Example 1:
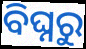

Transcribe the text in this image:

ବିଘ୍ନରୁ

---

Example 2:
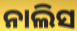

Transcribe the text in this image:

ନାଲିସ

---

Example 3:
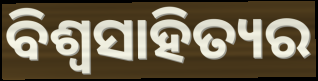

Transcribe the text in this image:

ବିଶ୍ୱସାହିତ୍ୟର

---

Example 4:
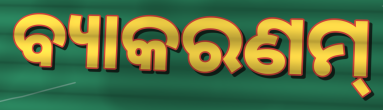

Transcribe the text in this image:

ବ୍ୟାକରଣମ୍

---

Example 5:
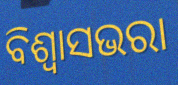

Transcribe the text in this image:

ବିଶ୍ୱାସଭରା